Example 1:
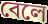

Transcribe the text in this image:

বেলে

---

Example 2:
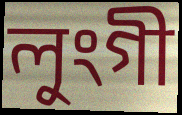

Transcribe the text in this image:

লুংগী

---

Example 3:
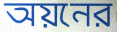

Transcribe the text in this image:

অয়নের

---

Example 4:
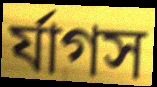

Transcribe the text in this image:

র্যাগস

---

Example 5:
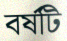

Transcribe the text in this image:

বর্ষটি